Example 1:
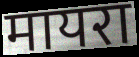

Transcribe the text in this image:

मायरा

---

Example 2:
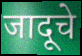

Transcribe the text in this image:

जादूचे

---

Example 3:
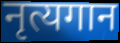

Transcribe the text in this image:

नृत्यगान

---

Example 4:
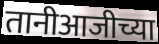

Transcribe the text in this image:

तानीआजीच्या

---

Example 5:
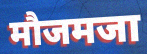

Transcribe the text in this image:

मौजमजा